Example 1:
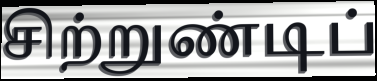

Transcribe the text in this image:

சிற்றுண்டிப்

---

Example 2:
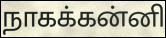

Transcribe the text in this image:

நாகக்கன்னி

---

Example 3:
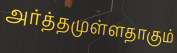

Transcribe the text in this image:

அர்த்தமுள்ளதாகும்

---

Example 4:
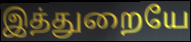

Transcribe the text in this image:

இத்துறையே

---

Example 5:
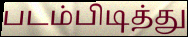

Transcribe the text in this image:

படம்பிடித்து